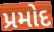
પ્રમોદ